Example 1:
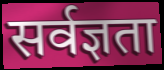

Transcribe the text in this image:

सर्वज्ञता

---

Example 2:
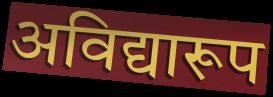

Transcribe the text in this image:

अविद्यारूप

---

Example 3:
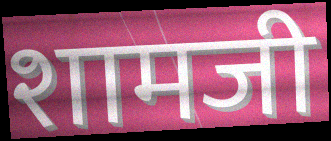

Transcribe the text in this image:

शामजी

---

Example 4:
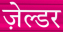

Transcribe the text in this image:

ज़ेल्डर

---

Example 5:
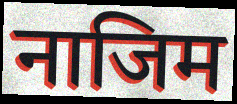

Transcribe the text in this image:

नाजिम